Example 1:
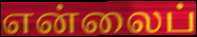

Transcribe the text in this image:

என்லைப்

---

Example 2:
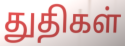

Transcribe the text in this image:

துதிகள்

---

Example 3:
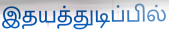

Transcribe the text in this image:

இதயத்துடிப்பில்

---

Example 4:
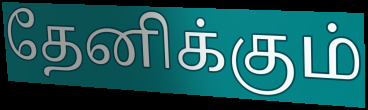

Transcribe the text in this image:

தேனிக்கும்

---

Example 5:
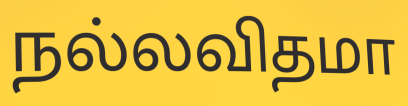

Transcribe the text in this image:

நல்லவிதமா